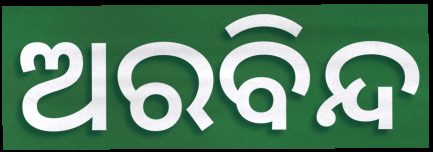
ଅରବିନ୍ଦ